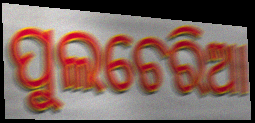
ପୁଲଚେରିଆ